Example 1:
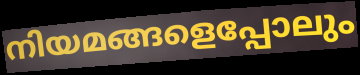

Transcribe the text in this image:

നിയമങ്ങളെപ്പോലും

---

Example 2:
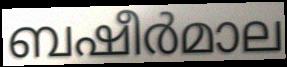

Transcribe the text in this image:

ബഷീർമാല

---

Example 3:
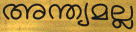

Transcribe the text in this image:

അന്ത്യമല്ല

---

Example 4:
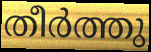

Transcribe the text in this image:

തീർത്തു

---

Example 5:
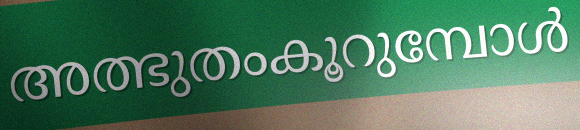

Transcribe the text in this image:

അത്ഭുതംകൂറുമ്പോൾ